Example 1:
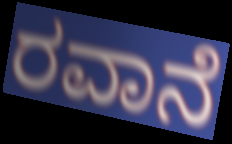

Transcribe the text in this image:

ರವಾನೆ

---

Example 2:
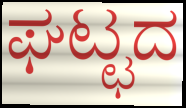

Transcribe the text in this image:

ಘಟ್ಟದ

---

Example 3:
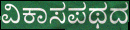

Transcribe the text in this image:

ವಿಕಾಸಪಥದ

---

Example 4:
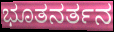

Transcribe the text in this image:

ಭೂತನರ್ತನ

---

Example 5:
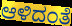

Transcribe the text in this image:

ಆಳಿದಂತೆ